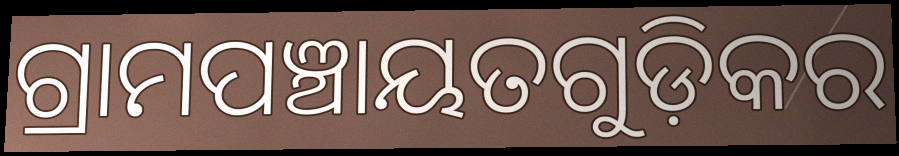
ଗ୍ରାମପଞ୍ଚାୟତଗୁଡ଼ିକର